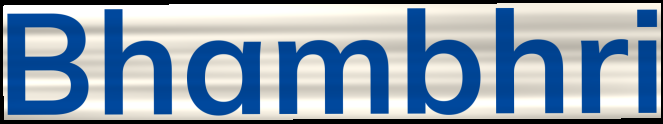
Bhambhri